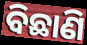
ବିଛାଣି